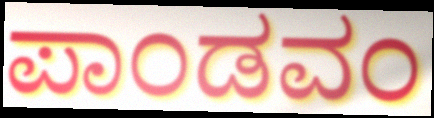
ಪಾಂಡವಂ